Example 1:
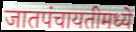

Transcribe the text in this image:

जातपंचायतीमध्ये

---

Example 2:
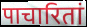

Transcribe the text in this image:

पाचारितां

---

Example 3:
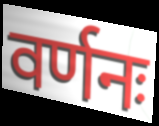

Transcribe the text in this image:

वर्णनः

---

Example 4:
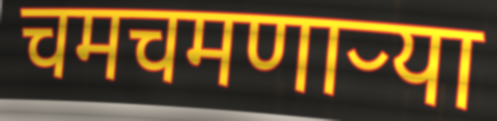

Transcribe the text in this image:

चमचमणाऱ्या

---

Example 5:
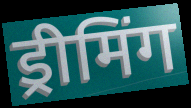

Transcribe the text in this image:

ड्रीमिंग